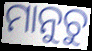
ମାନୁଚୁ